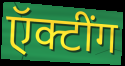
ऍक्टींग